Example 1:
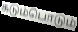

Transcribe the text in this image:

கடும்பொடும்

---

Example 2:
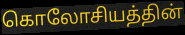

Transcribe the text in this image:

கொலோசியத்தின்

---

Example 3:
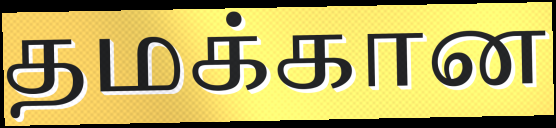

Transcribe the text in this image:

தமக்கான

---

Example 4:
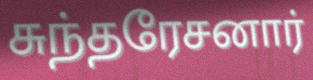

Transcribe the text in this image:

சுந்தரேசனார்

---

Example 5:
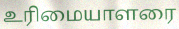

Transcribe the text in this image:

உரிமையாளரை